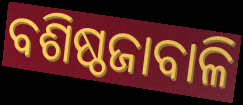
ବଶିଷ୍ଠଜାବାଳି